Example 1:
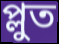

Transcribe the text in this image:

প্লুত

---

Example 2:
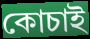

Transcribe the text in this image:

কোচাই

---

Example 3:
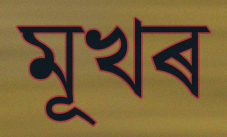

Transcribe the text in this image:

মূখৰ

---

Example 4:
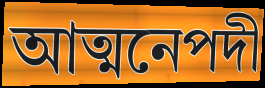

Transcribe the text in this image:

আত্মনেপদী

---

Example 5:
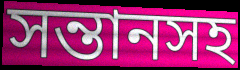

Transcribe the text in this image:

সন্তানসহ